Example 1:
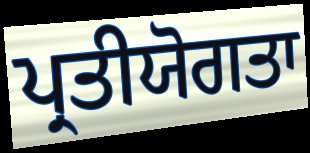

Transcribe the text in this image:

ਪ੍ਰਤੀਯੋਗਤਾ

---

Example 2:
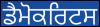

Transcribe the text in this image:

ਡੈਮੋਕਰਿਟਸ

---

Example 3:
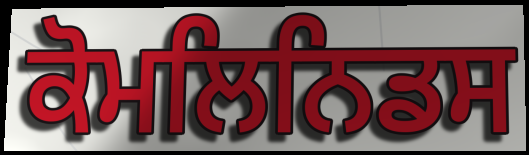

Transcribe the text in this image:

ਕੋਮਲਿਨਿਡਸ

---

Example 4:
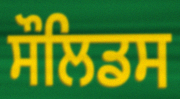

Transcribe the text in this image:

ਸੌਲਿਡਸ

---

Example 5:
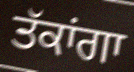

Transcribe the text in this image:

ਤੱਕਾਂਗਾ